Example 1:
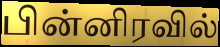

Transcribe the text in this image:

பின்னிரவில்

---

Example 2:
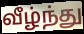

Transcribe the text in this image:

வீழ்ந்து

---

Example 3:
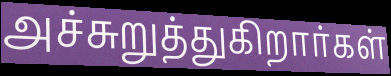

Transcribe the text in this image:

அச்சுறுத்துகிறார்கள்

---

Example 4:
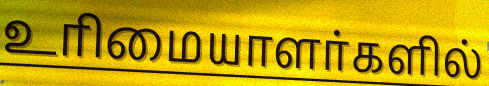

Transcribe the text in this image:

உரிமையாளர்களில்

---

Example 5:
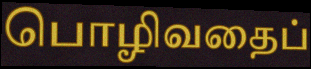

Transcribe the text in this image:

பொழிவதைப்